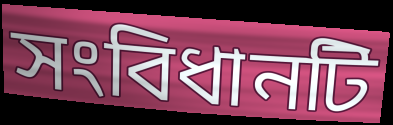
সংবিধানটি